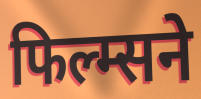
फिल्म्सने